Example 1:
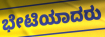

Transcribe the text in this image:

ಭೇಟಿಯಾದರು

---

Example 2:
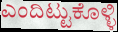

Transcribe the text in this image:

ಎಂದಿಟ್ಟುಕೊಳ್ಳಿ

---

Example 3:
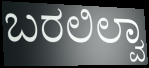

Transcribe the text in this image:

ಬರಲಿಲ್ವಾ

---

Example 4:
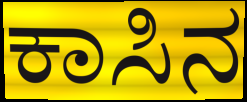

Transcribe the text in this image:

ಕಾಸಿನ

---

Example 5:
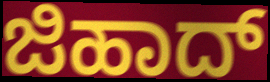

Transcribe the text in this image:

ಜಿಹಾದ್